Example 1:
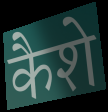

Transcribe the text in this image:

कैशे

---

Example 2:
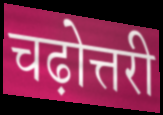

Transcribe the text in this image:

चढ़ोत्तरी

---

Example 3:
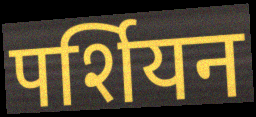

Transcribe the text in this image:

पर्शियन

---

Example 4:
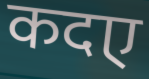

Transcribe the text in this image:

कदए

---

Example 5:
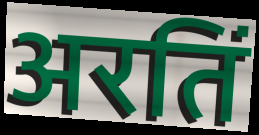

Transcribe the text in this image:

अरतिं